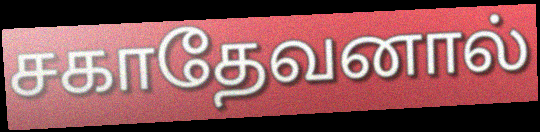
சகாதேவனால்